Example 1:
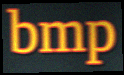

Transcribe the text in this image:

bmp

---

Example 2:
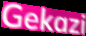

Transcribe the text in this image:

Gekazi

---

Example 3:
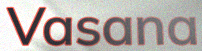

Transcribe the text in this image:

Vasana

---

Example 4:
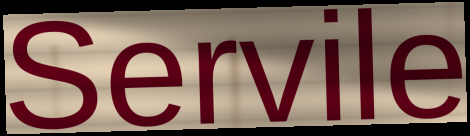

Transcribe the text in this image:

Servile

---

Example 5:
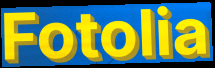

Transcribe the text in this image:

Fotolia